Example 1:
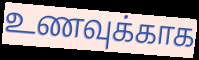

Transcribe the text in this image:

உணவுக்காக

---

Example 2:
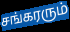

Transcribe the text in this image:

சங்கரரும்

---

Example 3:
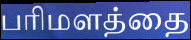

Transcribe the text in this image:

பரிமளத்தை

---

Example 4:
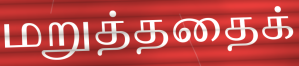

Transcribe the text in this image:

மறுத்ததைக்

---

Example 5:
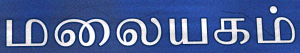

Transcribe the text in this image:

மலையகம்